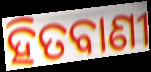
ହିତବାଣୀ